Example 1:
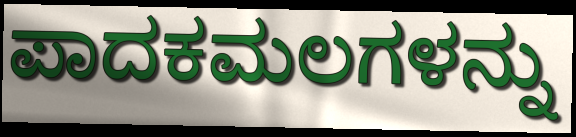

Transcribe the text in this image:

ಪಾದಕಮಲಗಳನ್ನು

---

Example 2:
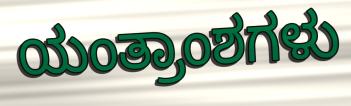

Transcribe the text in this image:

ಯಂತ್ರಾಂಶಗಳು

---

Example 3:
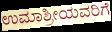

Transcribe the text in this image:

ಉಮಾಶ್ರೀಯವರಿಗೆ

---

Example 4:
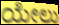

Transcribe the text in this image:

ಯೇಲು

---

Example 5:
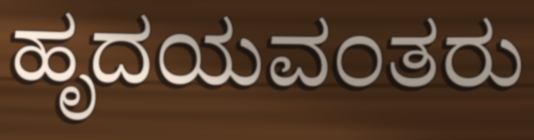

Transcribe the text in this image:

ಹೃದಯವಂತರು